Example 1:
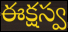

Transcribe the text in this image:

ఈక్షస్వ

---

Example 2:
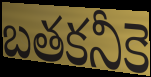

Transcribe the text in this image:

బతకనీకె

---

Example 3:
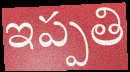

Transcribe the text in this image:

ఇప్పతి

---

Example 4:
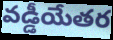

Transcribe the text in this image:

వడ్డీయేతర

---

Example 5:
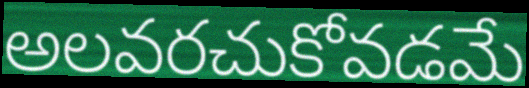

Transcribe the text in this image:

అలవరచుకోవడమే